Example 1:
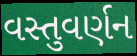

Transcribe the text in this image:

વસ્તુવર્ણન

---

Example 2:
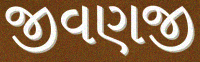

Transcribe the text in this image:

જીવણજી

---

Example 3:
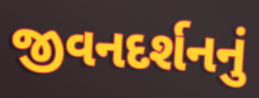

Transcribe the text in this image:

જીવનદર્શનનું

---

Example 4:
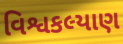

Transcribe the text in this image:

વિશ્વકલ્યાણ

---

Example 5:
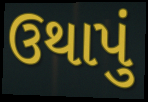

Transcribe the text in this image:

ઉથાપું